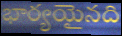
భార్యయైనది